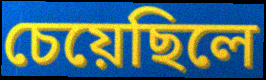
চেয়েছিলে